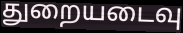
துறையடைவு